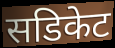
सडिकेट